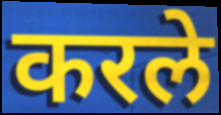
करले